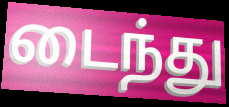
டைந்து